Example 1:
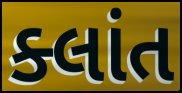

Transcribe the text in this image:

ક્લાંત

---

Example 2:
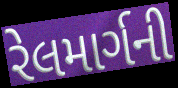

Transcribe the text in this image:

રેલમાર્ગની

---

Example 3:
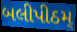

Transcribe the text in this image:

બલીપીઠમ્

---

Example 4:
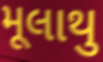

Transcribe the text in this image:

મૂલાથુ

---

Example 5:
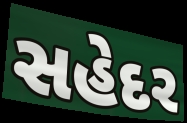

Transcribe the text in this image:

સહેદર